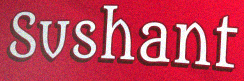
Sushant